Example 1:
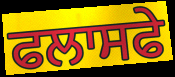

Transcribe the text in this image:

ਫਲਾਸਫੇ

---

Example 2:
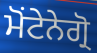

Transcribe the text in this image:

ਮੋਂਟੇਨੇਗ੍ਰੋ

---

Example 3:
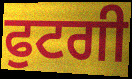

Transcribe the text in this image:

ਫੁਟਗੀ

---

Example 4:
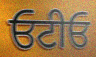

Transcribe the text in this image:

ਓਟੀਓ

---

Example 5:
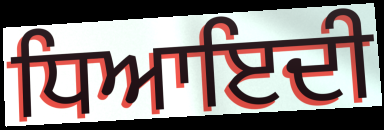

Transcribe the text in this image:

ਧਿਆਇਦੀ